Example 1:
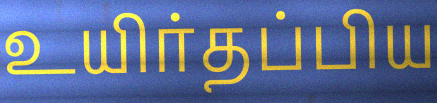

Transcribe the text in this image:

உயிர்தப்பிய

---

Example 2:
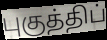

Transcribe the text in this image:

புகுத்திப்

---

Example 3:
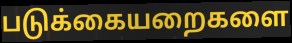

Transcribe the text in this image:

படுக்கையறைகளை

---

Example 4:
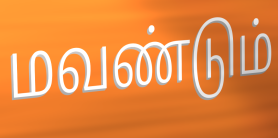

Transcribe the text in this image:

மவண்டும்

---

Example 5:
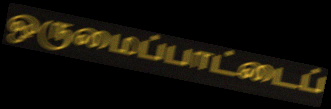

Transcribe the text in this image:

ஒருமைப்பாட்டைப்